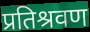
प्रतिश्रवण